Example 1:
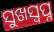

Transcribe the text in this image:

ସୁଖସ୍ୱପ୍ନ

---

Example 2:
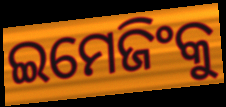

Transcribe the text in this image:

ଇମେଜିଂକୁ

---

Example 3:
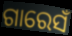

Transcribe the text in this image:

ଗାରେସଁ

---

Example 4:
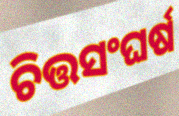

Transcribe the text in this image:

ଚିତ୍ତସଂଘର୍ଷ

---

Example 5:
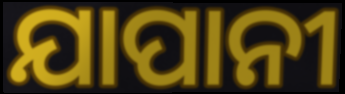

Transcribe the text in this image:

ଯାପାନୀ